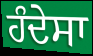
ਹੰਦੇਸਾ